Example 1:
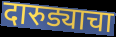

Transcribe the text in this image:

दारुड्याचा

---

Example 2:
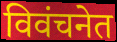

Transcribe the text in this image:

विवंचनेत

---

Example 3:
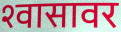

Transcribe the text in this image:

श्वासावर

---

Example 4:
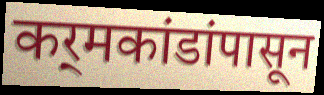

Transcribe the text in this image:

कर्मकांडांपासून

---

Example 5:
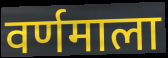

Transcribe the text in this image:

वर्णमाला